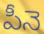
పీనె